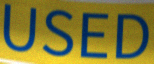
USED